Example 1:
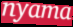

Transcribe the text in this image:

nyama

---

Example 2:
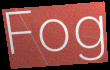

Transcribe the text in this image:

Fog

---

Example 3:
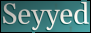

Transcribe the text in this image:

Seyyed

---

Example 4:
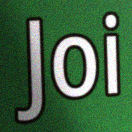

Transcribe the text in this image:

Joi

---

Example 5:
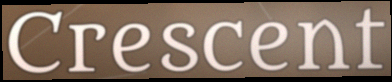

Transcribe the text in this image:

Crescent